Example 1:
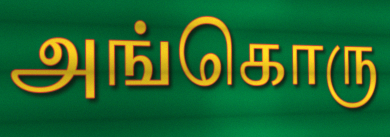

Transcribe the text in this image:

அங்கொரு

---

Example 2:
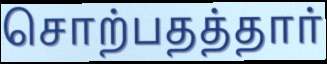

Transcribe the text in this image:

சொற்பதத்தார்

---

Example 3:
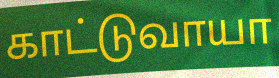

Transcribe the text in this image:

காட்டுவாயா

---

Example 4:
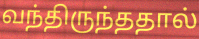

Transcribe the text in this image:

வந்திருந்ததால்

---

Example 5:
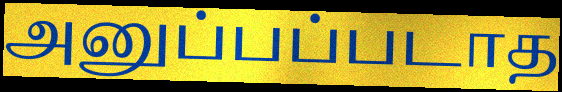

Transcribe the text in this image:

அனுப்பப்படாத